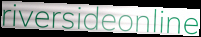
riversideonline